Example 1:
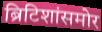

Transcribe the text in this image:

ब्रिटिशांसमोर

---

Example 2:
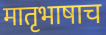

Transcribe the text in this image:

मातृभाषाच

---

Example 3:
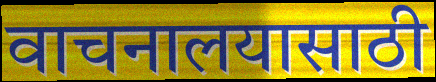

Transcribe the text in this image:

वाचनालयासाठी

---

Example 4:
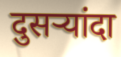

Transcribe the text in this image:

दुसर्‍यांदा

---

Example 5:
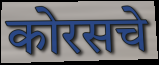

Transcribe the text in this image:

कोरसचे